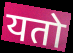
यतो